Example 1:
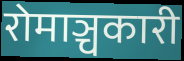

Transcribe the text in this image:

रोमाञ्चकारी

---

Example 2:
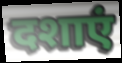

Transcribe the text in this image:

दशाएं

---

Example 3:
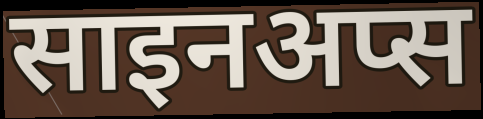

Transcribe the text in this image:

साइनअप्स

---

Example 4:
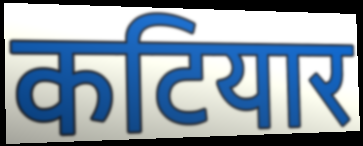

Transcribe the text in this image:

कटियार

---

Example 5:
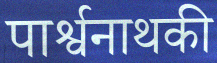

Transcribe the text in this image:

पार्श्वनाथकी